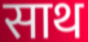
साथ